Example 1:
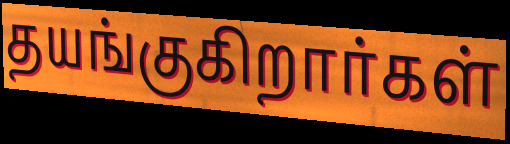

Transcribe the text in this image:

தயங்குகிறார்கள்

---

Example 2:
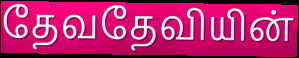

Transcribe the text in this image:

தேவதேவியின்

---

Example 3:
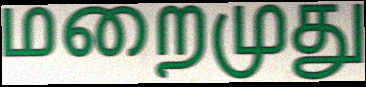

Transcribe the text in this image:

மறைமுது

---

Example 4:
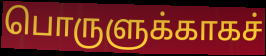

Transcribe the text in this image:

பொருளுக்காகச்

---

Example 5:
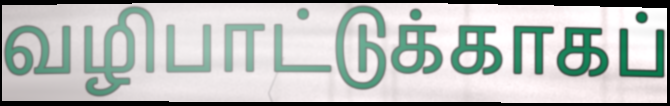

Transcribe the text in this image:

வழிபாட்டுக்காகப்